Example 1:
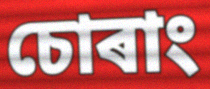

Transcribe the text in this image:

চোৰাং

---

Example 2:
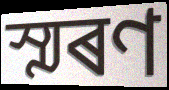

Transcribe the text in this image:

স্মৰণ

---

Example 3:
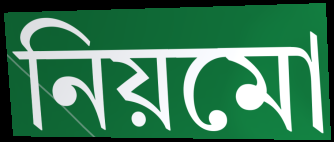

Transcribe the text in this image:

নিয়মো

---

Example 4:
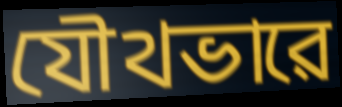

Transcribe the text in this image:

যৌথভাৱে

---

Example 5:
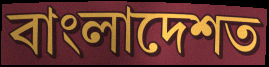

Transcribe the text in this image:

বাংলাদেশত